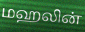
மஹலின்